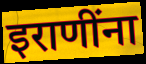
इराणींना